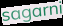
sagarni